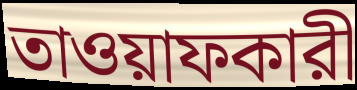
তাওয়াফকারী